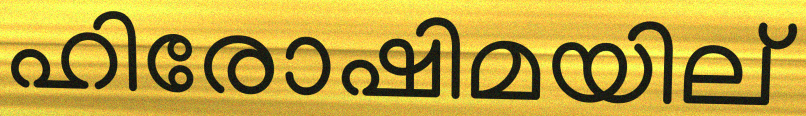
ഹിരോഷിമയില്